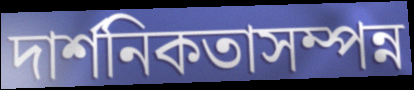
দার্শনিকতাসম্পন্ন